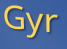
Gyr